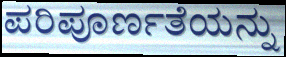
ಪರಿಪೂರ್ಣತೆಯನ್ನು